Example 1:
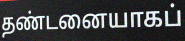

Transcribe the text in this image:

தண்டனையாகப்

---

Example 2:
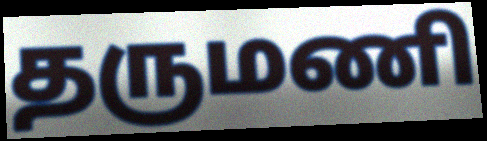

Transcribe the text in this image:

தருமணி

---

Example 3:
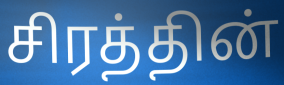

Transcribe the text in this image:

சிரத்தின்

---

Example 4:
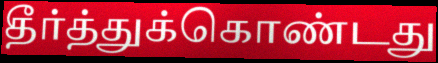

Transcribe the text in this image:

தீர்த்துக்கொண்டது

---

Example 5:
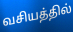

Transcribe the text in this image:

வசியத்தில்